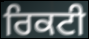
ਰਿਕਟੀ